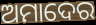
ଅମାଦେର